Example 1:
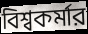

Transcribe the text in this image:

বিশ্বকর্মার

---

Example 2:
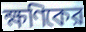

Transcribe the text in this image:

ক্ষণিকের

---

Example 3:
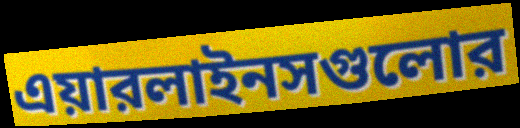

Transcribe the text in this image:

এয়ারলাইনসগুলোর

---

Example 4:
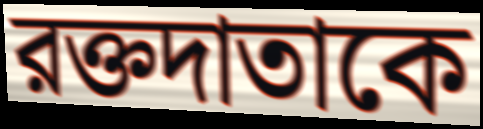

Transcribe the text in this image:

রক্তদাতাকে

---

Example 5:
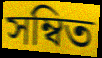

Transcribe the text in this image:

সম্বিত